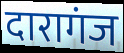
दारागंज